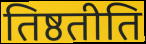
तिष्ठतीति